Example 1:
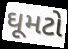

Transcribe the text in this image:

ઘૂમટો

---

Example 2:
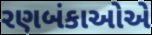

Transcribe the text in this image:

રણબંકાઓએ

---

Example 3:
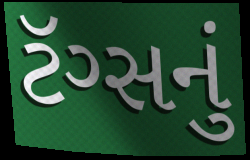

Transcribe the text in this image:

ટૅગ્સનું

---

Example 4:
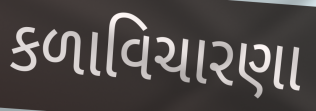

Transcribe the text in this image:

કળાવિચારણા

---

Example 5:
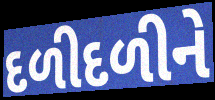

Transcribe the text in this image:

દળીદળીને